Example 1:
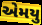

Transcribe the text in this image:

એમયુ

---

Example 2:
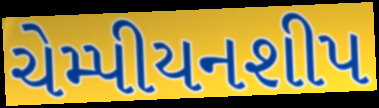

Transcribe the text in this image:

ચેમ્પીયનશીપ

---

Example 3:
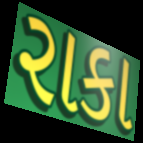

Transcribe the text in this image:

રાકા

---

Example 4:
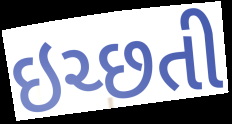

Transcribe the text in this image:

ઇચ્છતી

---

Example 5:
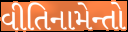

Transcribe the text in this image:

વીતિનામેન્તો